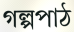
গল্পপাঠ